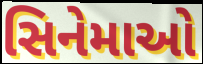
સિનેમાઓ